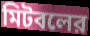
মিটবলের